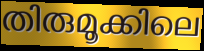
തിരുമൂക്കിലെ